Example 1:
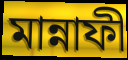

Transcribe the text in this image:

মান্নাফী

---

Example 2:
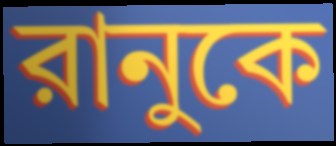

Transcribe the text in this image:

রানুকে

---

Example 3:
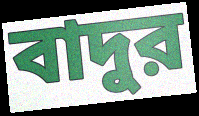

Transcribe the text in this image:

বাদুর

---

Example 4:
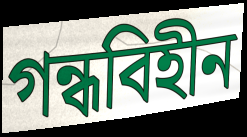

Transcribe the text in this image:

গন্ধবিহীন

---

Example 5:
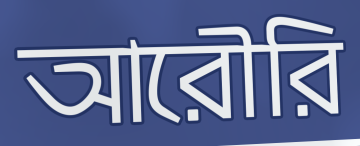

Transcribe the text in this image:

আরৌরি